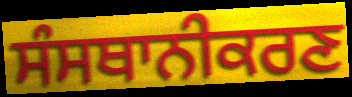
ਸੰਸਥਾਨੀਕਰਣ